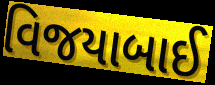
વિજયાબાઈ